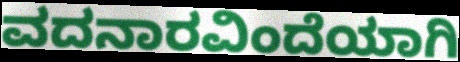
ವದನಾರವಿಂದೆಯಾಗಿ